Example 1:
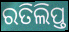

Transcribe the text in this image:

ରତିଲିପ୍ତ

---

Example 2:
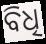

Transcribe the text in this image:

ବିଧି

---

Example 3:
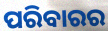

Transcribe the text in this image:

ପରିବାରର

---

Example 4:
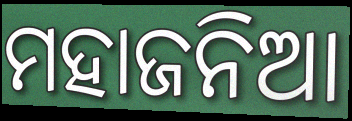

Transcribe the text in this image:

ମହାଜନିଆ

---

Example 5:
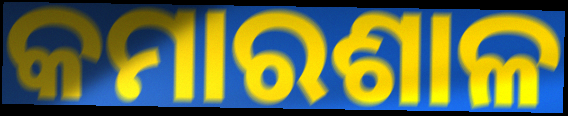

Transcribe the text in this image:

କମାରଶାଳ